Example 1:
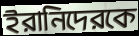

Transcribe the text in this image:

ইরানিদেরকে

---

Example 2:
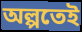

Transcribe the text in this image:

অল্পতেই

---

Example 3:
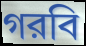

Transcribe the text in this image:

গরবি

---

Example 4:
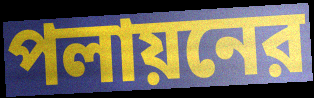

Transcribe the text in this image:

পলায়নের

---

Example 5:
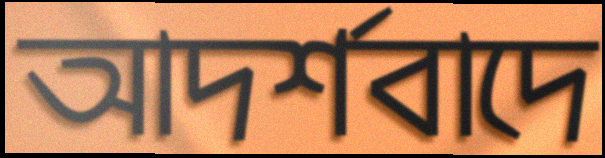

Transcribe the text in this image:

আদর্শবাদে